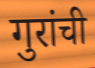
गुरांची